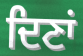
ਦਿਣਾਂ